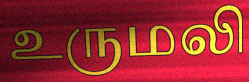
உருமலி